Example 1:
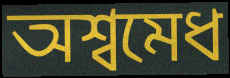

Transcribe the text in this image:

অশ্বমেধ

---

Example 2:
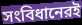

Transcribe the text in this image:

সংবিধানেরই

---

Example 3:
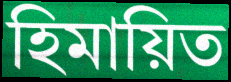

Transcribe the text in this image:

হিমায়িত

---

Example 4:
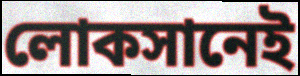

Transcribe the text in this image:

লোকসানেই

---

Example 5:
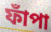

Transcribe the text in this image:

ফাঁপা